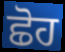
ਛੋਹ